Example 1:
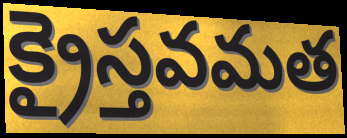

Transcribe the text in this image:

క్రైస్తవమత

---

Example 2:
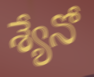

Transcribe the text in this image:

శ్యేనో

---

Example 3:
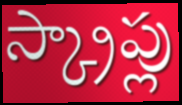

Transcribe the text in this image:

స్క్రాప్లు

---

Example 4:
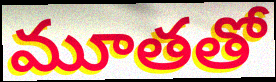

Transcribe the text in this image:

మూతతో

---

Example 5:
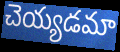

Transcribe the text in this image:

చెయ్యడమా